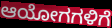
ಆಯೋಗಗಳಿಗೆ